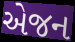
એજન